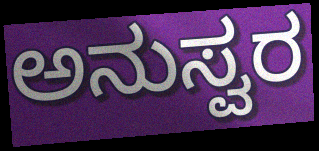
ಅನುಸ್ವರ